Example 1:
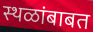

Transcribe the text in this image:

स्थळांबाबत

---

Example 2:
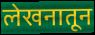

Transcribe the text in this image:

लेखनातून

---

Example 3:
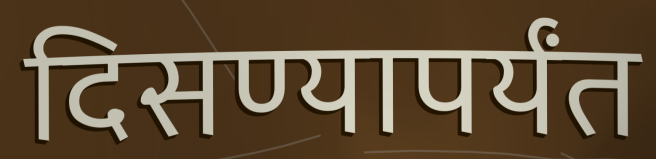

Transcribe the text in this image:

दिसण्यापर्यंत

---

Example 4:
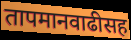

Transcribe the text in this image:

तापमानवाढीसह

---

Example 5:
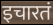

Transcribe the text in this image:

इचारतं